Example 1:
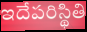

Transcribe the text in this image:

ఇదేపరిస్థితి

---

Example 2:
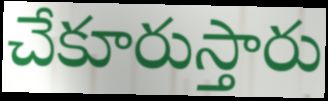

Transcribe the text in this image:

చేకూరుస్తారు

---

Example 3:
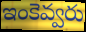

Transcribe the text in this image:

ఇంకెవ్వరు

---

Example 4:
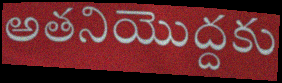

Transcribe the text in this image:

అతనియొద్దకు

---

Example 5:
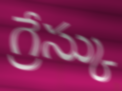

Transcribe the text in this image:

గ్రేస్కు